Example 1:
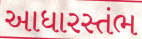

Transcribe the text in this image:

આધારસ્તંભ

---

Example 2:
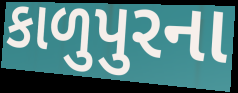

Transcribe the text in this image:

કાળુપુરના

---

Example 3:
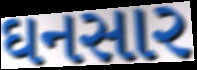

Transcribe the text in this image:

ઘનસાર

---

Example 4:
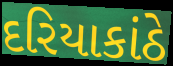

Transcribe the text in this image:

દરિયાકાંઠે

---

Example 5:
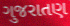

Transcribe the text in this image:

ગુજરાતણ